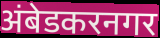
अंबेडकरनगर